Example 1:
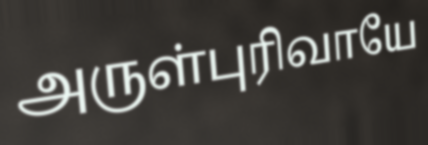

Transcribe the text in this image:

அருள்புரிவாயே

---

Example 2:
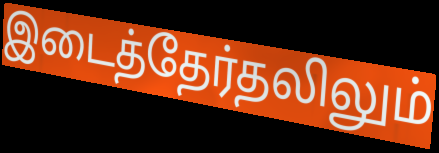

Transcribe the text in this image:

இடைத்தேர்தலிலும்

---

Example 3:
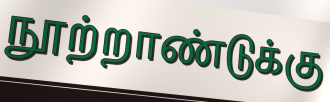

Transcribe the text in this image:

நூற்றாண்டுக்கு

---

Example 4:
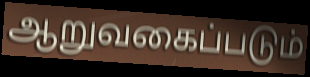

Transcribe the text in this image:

ஆறுவகைப்படும்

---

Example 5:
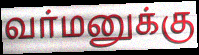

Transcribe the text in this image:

வர்மனுக்கு